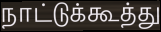
நாட்டுக்கூத்து